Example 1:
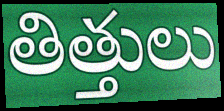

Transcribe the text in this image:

తిత్తులు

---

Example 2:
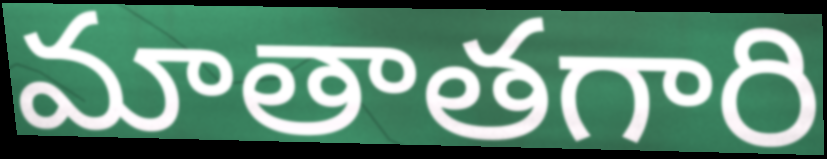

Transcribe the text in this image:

మాతాతగారి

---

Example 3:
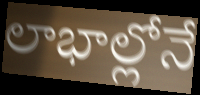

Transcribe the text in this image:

లాభాల్లోనే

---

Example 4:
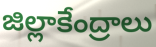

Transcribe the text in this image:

జిల్లాకేంద్రాలు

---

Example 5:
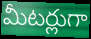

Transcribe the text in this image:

మీటర్లుగా